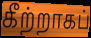
கீற்றாகப்